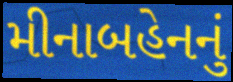
મીનાબહેનનું